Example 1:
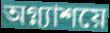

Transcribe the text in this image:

অগ্ন্যাশয়ে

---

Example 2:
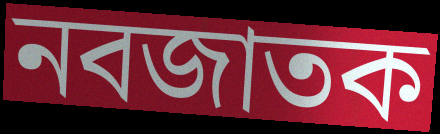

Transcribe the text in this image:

নবজাতক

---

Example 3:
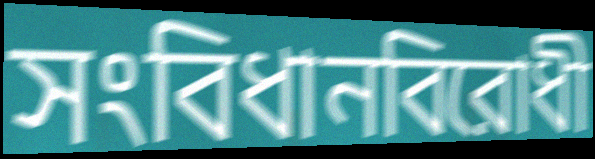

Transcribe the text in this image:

সংবিধানবিরোধী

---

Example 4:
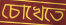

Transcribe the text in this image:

চোখেতে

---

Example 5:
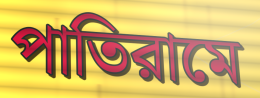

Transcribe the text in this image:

পাতিরামে